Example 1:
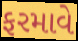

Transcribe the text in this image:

ફરમાવે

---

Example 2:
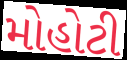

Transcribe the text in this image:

મોહોટી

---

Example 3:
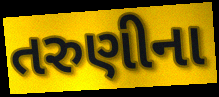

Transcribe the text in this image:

તરુણીના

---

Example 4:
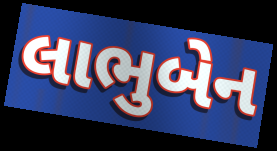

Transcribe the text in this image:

લાભુબેન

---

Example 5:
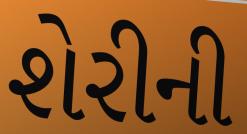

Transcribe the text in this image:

શેરીની